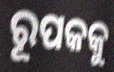
ରୂପକକୁ